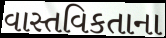
વાસ્તવિકતાના